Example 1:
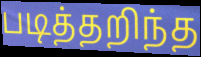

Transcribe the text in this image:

படித்தறிந்த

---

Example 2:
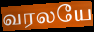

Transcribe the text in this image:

வரலயே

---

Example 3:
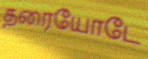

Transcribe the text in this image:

தரையோடே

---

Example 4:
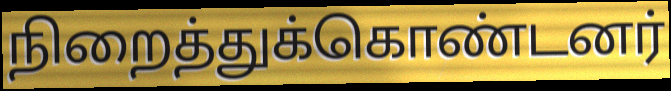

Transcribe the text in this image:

நிறைத்துக்கொண்டனர்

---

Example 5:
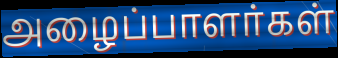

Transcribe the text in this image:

அழைப்பாளர்கள்